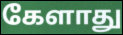
கேளாது